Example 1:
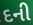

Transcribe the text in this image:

દની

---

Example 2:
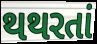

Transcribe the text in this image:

થથરતાં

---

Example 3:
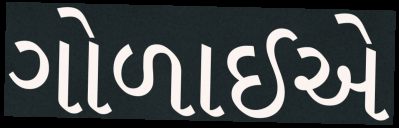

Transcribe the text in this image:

ગોળાઈએ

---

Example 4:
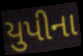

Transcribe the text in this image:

યુપીના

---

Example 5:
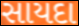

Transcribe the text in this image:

સાયદા